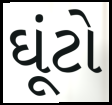
ઘૂંટો